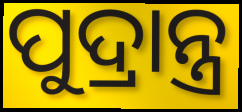
ପୁଦ୍ରାନ୍ତ୍ର